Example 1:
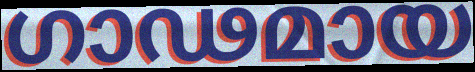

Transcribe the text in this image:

ഗാഢമായ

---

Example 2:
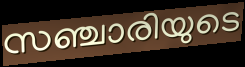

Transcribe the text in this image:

സഞ്ചാരിയുടെ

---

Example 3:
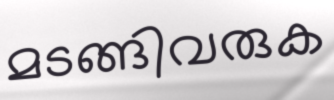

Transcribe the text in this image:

മടങ്ങിവരുക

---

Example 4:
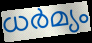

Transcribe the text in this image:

ധർമ്യം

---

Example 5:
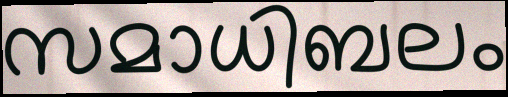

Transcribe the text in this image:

സമാധിബലം